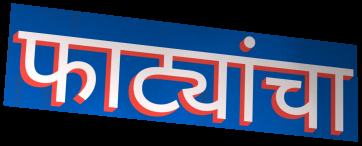
फाट्यांचा